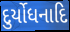
દુર્યોધનાદિ